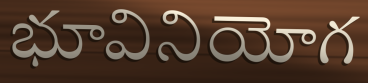
భూవినియోగ